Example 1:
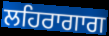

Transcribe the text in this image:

ਲਹਿਰਾਗਾਗ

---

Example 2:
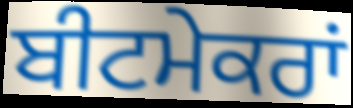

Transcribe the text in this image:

ਬੀਟਮੇਕਰਾਂ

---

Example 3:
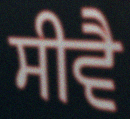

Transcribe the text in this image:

ਸੀਵੈ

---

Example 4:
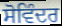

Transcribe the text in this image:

ਸੋਵਿੰਦਰ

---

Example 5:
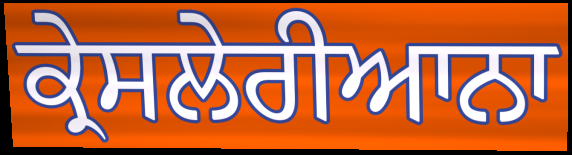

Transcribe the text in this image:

ਕ੍ਰੇਸਲੇਰੀਆਨਾ